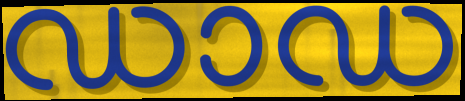
ഡാഡ